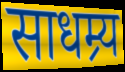
साधम्र्य